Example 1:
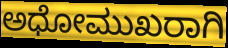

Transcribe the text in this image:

ಅಧೋಮುಖರಾಗಿ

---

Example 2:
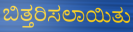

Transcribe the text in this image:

ಬಿತ್ತರಿಸಲಾಯಿತು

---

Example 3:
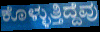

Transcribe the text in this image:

ಕೊಳ್ಳುತ್ತಿದ್ದೆವು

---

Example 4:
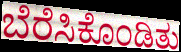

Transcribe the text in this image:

ಬೆರೆಸಿಕೊಂಡಿತು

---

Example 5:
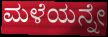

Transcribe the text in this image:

ಮಳೆಯನ್ನೇ